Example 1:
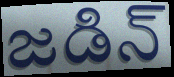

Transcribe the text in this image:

జడిన్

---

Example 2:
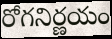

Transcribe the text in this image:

రోగనిర్ణయం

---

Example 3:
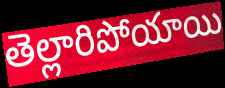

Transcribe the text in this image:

తెల్లారిపోయాయి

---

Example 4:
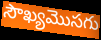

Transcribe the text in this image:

సౌఖ్యమొసగు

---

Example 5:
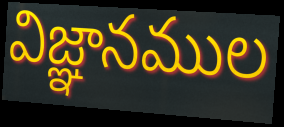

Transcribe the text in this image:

విజ్ఞానముల